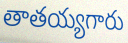
తాతయ్యగారు